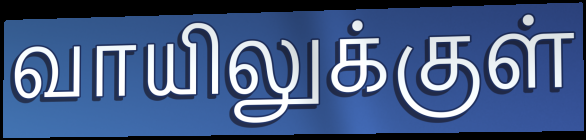
வாயிலுக்குள்